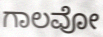
ಗಾಲವೋ